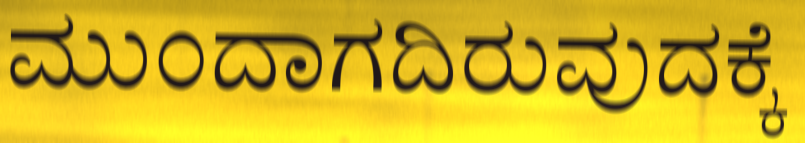
ಮುಂದಾಗದಿರುವುದಕ್ಕೆ